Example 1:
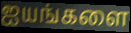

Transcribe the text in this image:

ஐயங்களை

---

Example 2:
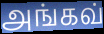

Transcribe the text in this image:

அங்கவ்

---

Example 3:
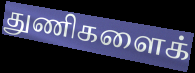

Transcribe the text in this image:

துணிகளைக்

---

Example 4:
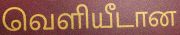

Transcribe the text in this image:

வெளியீடான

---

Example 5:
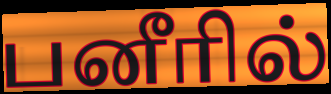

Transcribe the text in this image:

பனீரில்